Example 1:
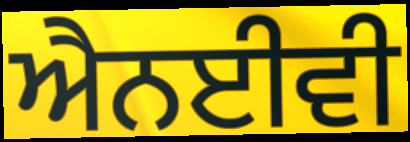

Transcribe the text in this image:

ਐਨਈਵੀ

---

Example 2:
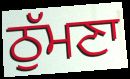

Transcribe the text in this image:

ਠੁੱਮਣਾ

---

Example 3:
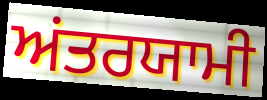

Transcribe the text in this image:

ਅਂਤਰਯਾਮੀ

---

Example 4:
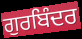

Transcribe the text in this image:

ਗੁਰਬਿੰਦਰ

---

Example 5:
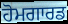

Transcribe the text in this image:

ਹੋਮਗਾਰਡ